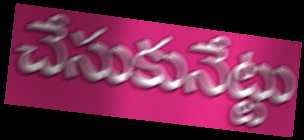
చేసుకునేట్టు